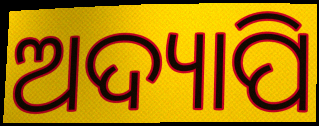
ଅଦ୍ୟାପି